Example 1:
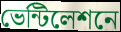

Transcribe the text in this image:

ভেন্টিলেশনে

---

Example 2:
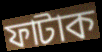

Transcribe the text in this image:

ফাটাক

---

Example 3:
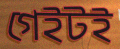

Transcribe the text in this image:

গেইটই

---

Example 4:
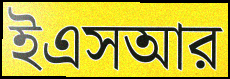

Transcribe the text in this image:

ইএসআর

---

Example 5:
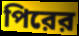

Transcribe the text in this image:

পিরের